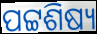
ପଟ୍ଟଶିଷ୍ୟ